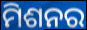
ମିଶନର